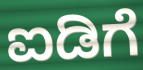
ಐಡಿಗೆ